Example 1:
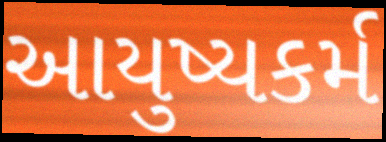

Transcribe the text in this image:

આયુષ્યકર્મ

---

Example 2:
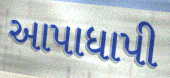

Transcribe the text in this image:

આપાધાપી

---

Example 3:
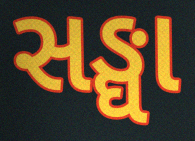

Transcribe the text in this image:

સઙ્ઘા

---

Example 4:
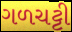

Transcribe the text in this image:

ગળચટ્ટી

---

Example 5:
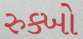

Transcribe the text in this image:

રુક્ખો